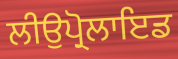
ਲੀਉਪ੍ਰੋਲਾਇਡ